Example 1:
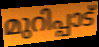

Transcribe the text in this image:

മുറിപ്പാട്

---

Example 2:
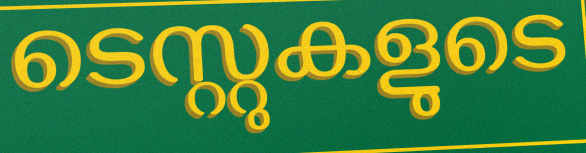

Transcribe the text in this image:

ടെസ്റ്റുകളുടെ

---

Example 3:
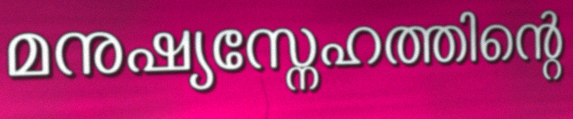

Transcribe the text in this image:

മനുഷ്യസ്നേഹത്തിന്റെ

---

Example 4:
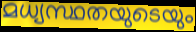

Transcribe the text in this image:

മധ്യസ്ഥതയുടെയും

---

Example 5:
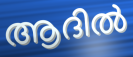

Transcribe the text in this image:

ആദിൽ